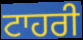
ਟਾਹਰੀ